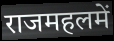
राजमहलमें